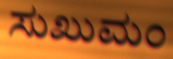
ಸುಖುಮಂ